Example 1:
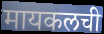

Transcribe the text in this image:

मायकलची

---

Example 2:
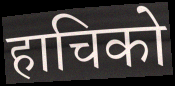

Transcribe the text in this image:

हाचिको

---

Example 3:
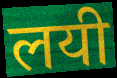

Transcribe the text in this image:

लयी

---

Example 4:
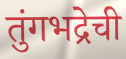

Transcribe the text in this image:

तुंगभद्रेची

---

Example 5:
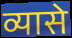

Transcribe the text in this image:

व्यासे